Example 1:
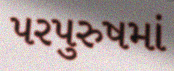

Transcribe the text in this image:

પરપુરુષમાં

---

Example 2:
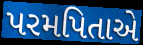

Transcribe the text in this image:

પરમપિતાએ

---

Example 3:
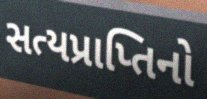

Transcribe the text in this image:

સત્યપ્રાપ્તિનો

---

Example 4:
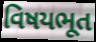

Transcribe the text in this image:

વિષયભૂત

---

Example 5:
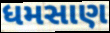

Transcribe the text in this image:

ધમસાણ